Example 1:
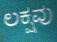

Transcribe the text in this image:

ಲಕ್ಷವು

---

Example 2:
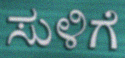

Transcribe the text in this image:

ಸುಳಿಗೆ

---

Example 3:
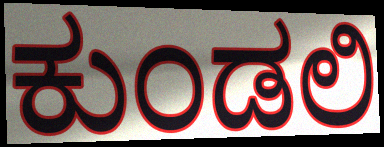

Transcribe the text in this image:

ಕುಂಡಲಿ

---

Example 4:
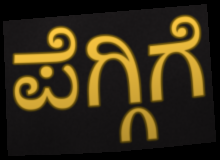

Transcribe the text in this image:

ಪೆಗ್ಗಿಗೆ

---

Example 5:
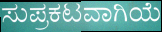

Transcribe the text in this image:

ಸುಪ್ರಕಟವಾಗಿಯೆ